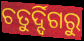
ଚତୁର୍ଦ୍ଦିଗରୁ